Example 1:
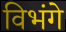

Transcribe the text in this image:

विभंगे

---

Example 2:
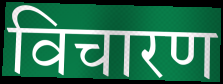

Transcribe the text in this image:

विचारण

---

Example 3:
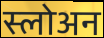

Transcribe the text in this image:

स्लोअन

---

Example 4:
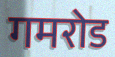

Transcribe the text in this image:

गमरोड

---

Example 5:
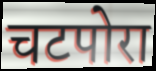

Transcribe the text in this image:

चटपोरा